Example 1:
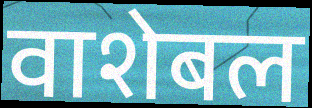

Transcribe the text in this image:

वाशेबल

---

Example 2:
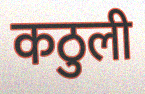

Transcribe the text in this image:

कठुली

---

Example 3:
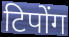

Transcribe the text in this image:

टिपोंग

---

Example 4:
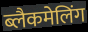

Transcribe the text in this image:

ब्लैकमेलिंग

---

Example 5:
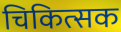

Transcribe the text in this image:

चिकित्‍सक